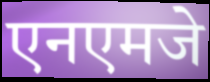
एनएमजे